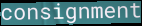
consignment